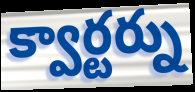
క్వార్టర్ను